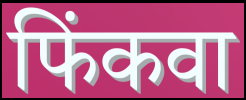
फिंकवा